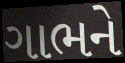
ગાભને